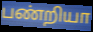
பண்றியா